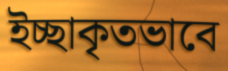
ইচ্ছাকৃতভাবে